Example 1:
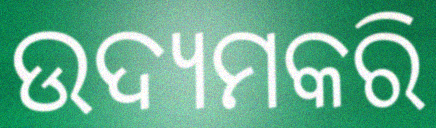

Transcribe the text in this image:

ଉଦ୍ୟମକରି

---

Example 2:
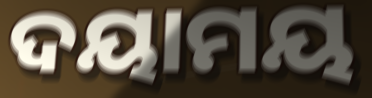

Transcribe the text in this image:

ଦୟାମୟ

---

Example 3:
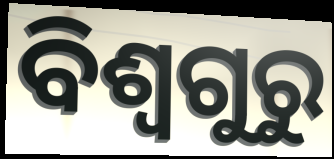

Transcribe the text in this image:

ବିଶ୍ୱଗୁରୁ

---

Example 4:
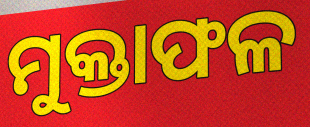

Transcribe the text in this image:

ମୁକ୍ତାଫଳ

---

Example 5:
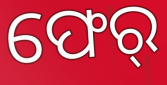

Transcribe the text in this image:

ଫେର୍